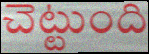
చెట్టుంది